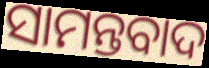
ସାମନ୍ତବାଦ